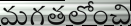
మగతలోంచి